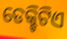
ଡେକ୍ଚିଟିଏ